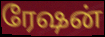
ரேஷன்